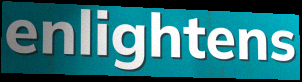
enlightens